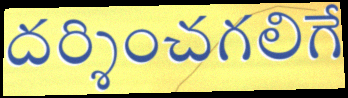
దర్శించగలిగే